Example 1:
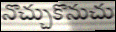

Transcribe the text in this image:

నొచ్చుకొనుచు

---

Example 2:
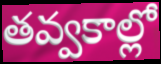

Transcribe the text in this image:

తవ్వకాల్లో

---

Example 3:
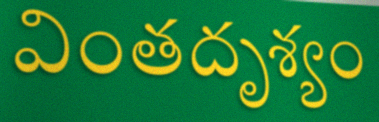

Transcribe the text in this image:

వింతదృశ్యం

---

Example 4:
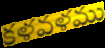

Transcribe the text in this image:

కళవళము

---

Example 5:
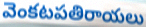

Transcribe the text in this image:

వెంకటపతిరాయలు